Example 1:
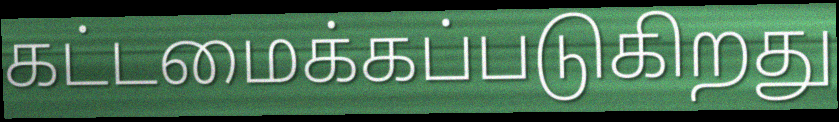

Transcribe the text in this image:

கட்டமைக்கப்படுகிறது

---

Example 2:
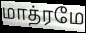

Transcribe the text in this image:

மாத்ரமே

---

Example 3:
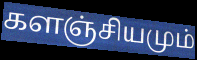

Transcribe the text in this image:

களஞ்சியமும்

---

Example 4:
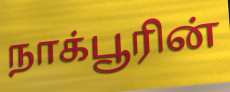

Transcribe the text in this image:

நாக்பூரின்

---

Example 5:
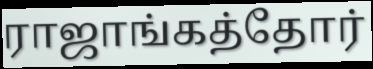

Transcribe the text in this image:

ராஜாங்கத்தோர்